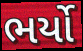
ભર્યો